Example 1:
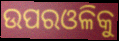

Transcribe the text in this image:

ଉପରଓଳିକୁ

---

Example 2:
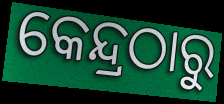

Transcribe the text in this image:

କେନ୍ଦ୍ରଠାରୁ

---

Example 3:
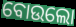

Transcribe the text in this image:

ବୋଉଲୋ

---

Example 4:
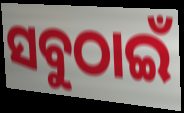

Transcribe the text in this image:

ସବୁଠାଇଁ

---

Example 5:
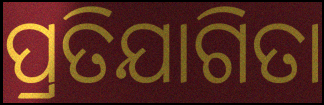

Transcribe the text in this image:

ପ୍ରତିଯାଗିତା